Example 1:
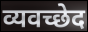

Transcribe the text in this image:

व्यवच्छेद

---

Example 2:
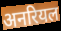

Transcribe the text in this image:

अनरियल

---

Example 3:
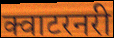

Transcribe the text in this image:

क्वाटरनरी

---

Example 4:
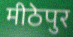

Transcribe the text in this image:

मीठेपुर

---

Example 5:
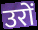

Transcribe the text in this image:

उरों